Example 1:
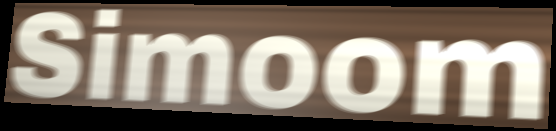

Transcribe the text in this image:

Simoom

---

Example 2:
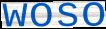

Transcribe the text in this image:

woso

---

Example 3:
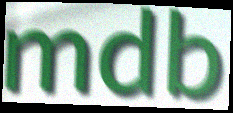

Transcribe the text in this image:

mdb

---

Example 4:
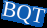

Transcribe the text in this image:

BQT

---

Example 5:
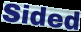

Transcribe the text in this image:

Sided